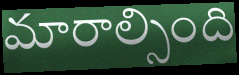
మారాల్సింది